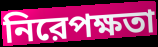
নিরেপক্ষতা